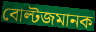
বোল্টজমানক